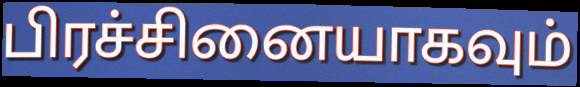
பிரச்சினையாகவும்